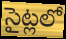
సైట్లలో